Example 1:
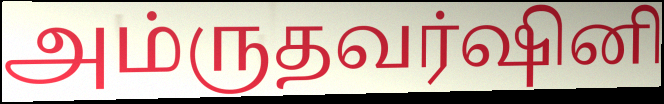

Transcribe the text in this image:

அம்ருதவர்ஷினி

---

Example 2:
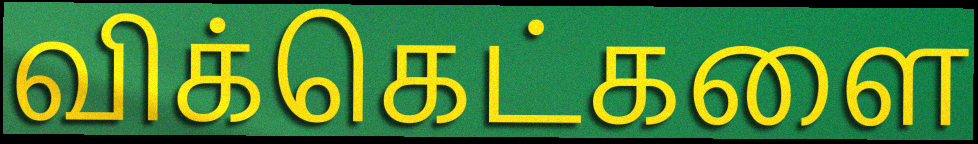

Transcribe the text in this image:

விக்கெட்களை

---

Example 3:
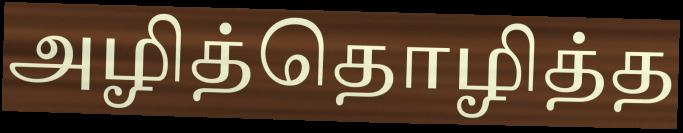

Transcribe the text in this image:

அழித்தொழித்த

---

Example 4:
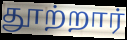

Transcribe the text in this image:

தூற்றார்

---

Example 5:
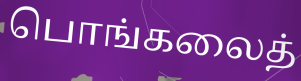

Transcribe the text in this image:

பொங்கலைத்